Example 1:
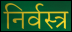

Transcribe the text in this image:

निर्वस्‍त्र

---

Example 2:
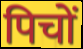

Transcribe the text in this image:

पिचों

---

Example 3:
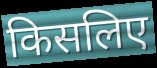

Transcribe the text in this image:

किसलिए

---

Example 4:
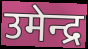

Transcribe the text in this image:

उमेन्द्र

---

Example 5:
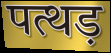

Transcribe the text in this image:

पत्थड़